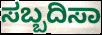
ಸಬ್ಬದಿಸಾ